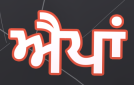
ਐਪਾਂ